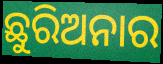
ଛୁରିଅନାର